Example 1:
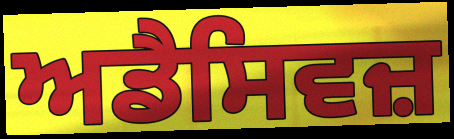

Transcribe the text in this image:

ਅਡੈਸਿਵਜ਼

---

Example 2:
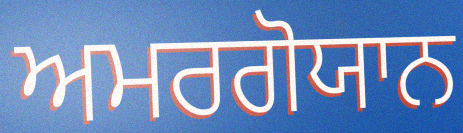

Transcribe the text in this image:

ਅਮਰਗੋਯਾਨ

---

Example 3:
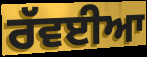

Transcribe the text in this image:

ਰੱਵਈਆ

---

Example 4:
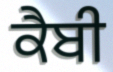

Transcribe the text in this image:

ਕੈਬੀ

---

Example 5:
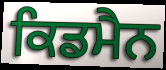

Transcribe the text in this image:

ਕਿਡਮੈਨ